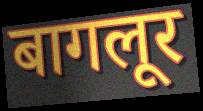
बागलूर